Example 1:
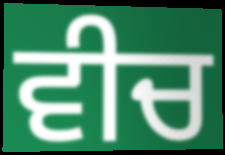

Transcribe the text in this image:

ਵੀਚ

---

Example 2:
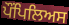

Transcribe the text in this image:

ਪੌਂਪਿਲਿਅਸ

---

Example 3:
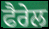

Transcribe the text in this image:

ਫੈਰੇਲ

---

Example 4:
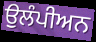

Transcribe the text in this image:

ਉੁਲੰਪੀਅਨ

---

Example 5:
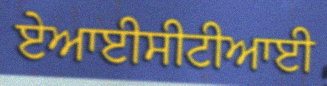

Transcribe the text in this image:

ਏਆਈਸੀਟੀਆਈ